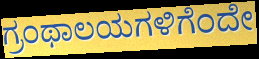
ಗ್ರಂಥಾಲಯಗಳಿಗೆಂದೇ